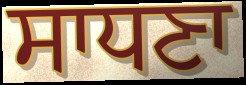
ਸਾਧਣਾ